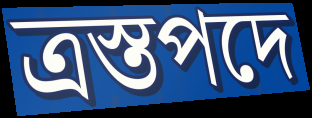
ত্রস্তপদে